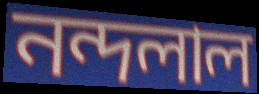
নন্দলাল